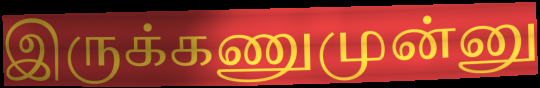
இருக்கணுமுன்னு